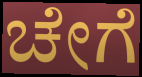
ಚೇಗೆ